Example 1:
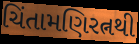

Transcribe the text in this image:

ચિંતામણિરત્નથી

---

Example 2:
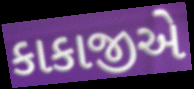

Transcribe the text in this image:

કાકાજીએ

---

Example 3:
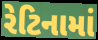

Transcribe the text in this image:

રેટિનામાં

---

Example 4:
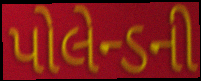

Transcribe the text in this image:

પોલેન્ડની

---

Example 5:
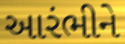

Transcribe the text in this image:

આરંભીને